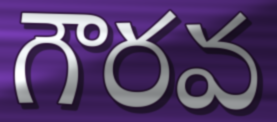
గౌరవ